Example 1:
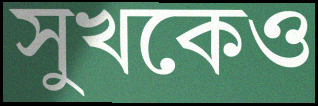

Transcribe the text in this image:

সুখকেও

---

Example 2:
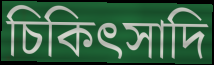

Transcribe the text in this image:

চিকিৎসাদি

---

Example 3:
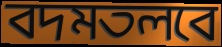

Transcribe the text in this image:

বদমতলবে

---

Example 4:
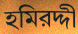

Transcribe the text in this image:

হমিরদ্দী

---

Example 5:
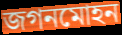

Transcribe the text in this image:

জগনমোহন